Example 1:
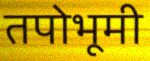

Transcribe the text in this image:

तपोभूमी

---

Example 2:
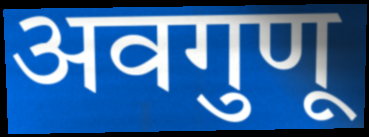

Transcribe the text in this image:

अवगुणू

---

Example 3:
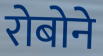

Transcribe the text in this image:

रोबोने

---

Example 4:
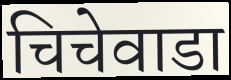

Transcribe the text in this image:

चिचेवाडा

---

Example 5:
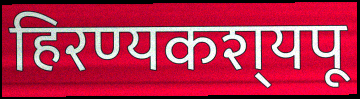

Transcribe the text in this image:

हिरण्यकश्यपू